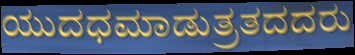
ಯುದಧಮಾಡುತ್ರತದದರು